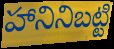
హానినిబట్టి